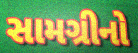
સામગ્રીનો